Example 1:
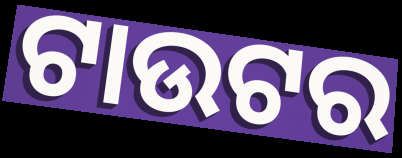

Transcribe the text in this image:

ଟାଉଟର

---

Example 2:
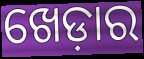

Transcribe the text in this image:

ଖେଡ଼ାର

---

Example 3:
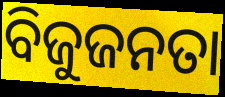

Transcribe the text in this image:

ବିଜୁଜନତା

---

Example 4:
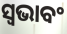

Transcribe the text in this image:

ସ୍ଵଭାବଂ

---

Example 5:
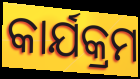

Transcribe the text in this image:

କାର୍ଯକ୍ରମ